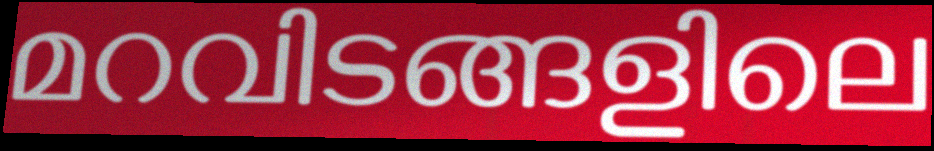
മറവിടങ്ങളിലെ